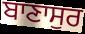
ਬਾਣਾਸੁਰ